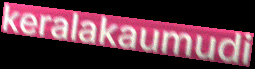
keralakaumudi